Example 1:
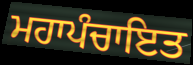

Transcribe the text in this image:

ਮਹਾਪੰਚਾਇਤ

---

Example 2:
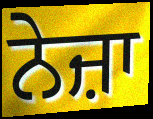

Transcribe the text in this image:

ਨੇਜ਼ਾ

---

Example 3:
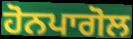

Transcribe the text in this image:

ਹੋਨਪਾਗੋਲ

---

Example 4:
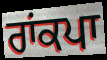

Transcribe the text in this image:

ਰਾਂਕਪਾ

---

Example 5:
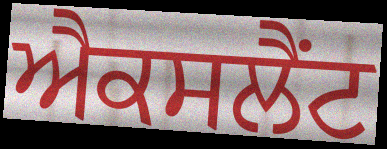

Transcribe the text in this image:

ਐਕਸਲੈਂਟ